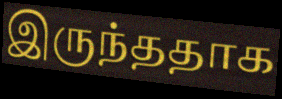
இருந்ததாக